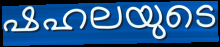
ഷഹലയുടെ